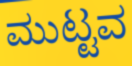
ಮುಟ್ಟವ